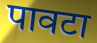
पावटा